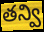
తన్వి